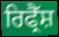
ਰਿਫ੍ਰੈੱਸ਼